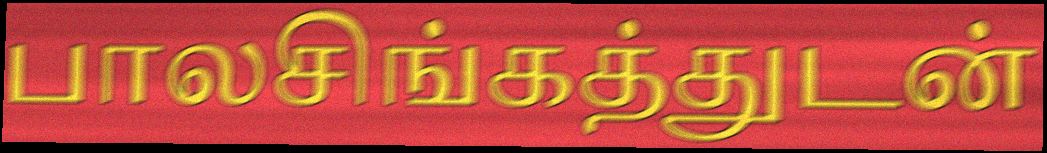
பாலசிங்கத்துடன்